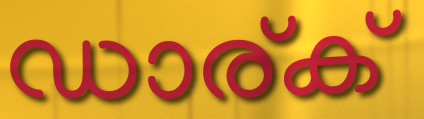
ഡാര്ക്